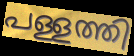
പള്ളത്തി